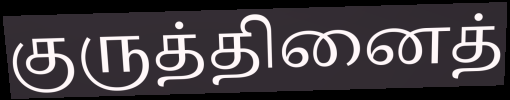
குருத்தினைத்